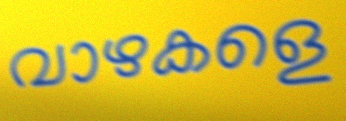
വാഴകളെ